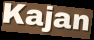
Kajan